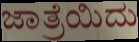
ಜಾತ್ರೆಯಿದು